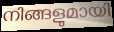
നിങ്ങളുമായി